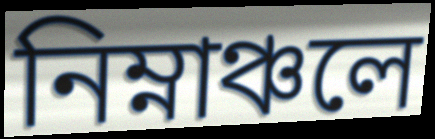
নিম্নাঞ্চলে